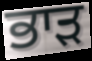
ਭਾੜ